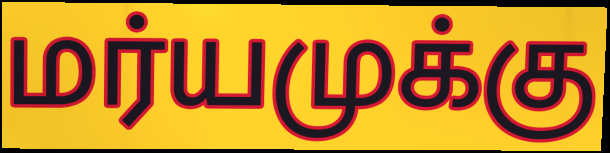
மர்யமுக்கு